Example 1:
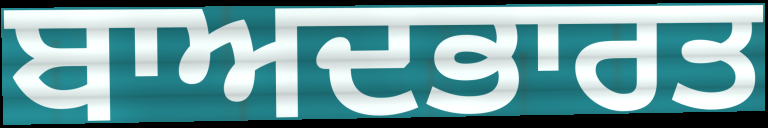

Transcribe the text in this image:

ਬਾਅਦਭਾਰਤ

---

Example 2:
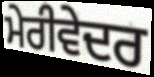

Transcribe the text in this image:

ਮੇਰੀਵੇਦਰ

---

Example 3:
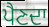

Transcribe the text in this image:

ਪੈਣਦਾ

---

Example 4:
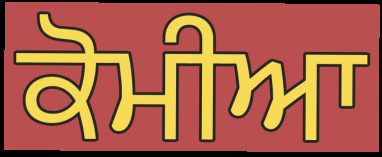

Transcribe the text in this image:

ਕੋਮੀਆ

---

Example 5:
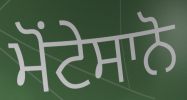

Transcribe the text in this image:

ਮੋਂਟੇਸਾਨੋ